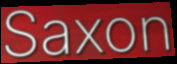
Saxon